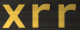
xrr